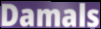
Damals